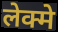
लेक्मे